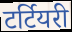
टर्टियरी